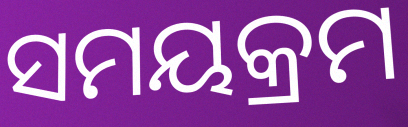
ସମୟକ୍ରମ